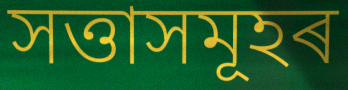
সত্তাসমূহৰ